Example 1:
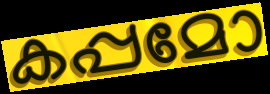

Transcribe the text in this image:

കപ്പമോ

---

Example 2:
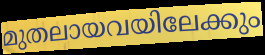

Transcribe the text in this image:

മുതലായവയിലേക്കും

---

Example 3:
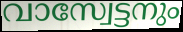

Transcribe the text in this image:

വാസ്വേട്ടനും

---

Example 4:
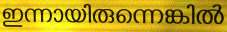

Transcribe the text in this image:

ഇന്നായിരുന്നെങ്കിൽ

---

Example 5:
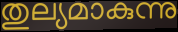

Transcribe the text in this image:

തുല്യമാകുന്നു